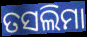
ତସଲିମା